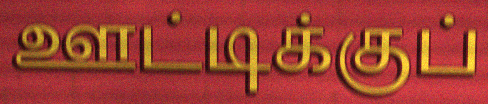
ஊட்டிக்குப்